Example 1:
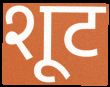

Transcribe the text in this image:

शूट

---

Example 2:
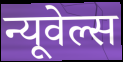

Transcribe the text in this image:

न्यूवेल्स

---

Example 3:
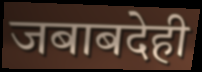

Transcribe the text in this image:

जबाबदेही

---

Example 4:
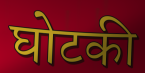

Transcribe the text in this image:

घोटकी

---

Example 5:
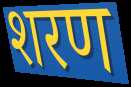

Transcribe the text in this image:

शरण